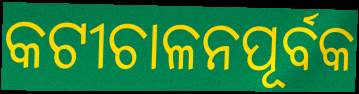
କଟୀଚାଳନପୂର୍ବକ